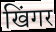
खिंगर